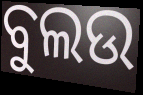
ବୁଲଉ